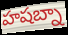
హషబ్నా